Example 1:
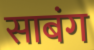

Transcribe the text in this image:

साबंग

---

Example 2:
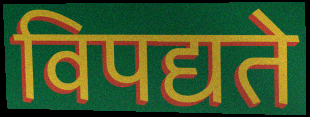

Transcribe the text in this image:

विपद्यते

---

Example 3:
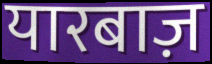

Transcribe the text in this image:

यारबाज़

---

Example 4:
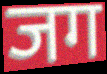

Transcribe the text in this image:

जग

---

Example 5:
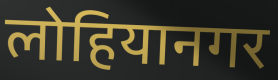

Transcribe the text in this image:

लोहियानगर